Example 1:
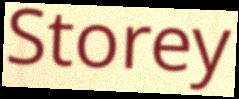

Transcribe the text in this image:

Storey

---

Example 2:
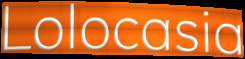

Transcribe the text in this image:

Lolocasia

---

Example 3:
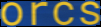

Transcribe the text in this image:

orcs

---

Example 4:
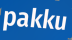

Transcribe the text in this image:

pakku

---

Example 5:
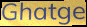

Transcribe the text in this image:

Ghatge